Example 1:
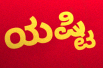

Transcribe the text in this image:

ಯಷ್ಟಿ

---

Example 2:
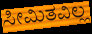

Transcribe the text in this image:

ಸೀಮಿತವಿಲ್ಲ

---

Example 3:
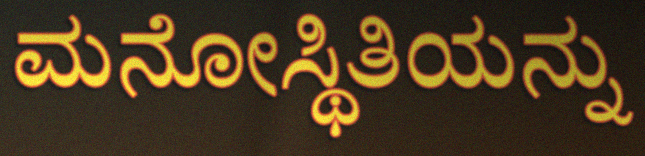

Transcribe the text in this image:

ಮನೋಸ್ಥಿತಿಯನ್ನು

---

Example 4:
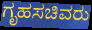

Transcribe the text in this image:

ಗೃಹಸಚಿವರು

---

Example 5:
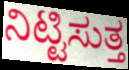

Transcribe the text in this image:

ನಿಟ್ಟಿಸುತ್ತ